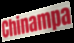
Chinampa